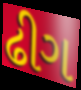
ઢીગ